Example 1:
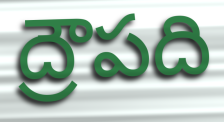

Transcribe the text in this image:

ద్రౌపది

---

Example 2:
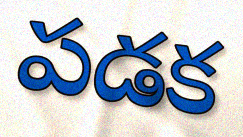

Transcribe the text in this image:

పడక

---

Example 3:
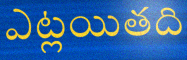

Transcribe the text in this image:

ఎట్లయితది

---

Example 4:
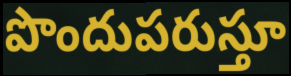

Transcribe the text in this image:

పొందుపరుస్తూ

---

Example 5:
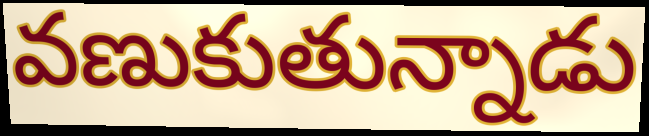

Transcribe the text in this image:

వణుకుతున్నాడు